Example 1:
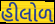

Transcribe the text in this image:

હીલોળ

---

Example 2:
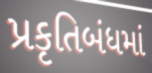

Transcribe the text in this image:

પ્રકૃતિબંધમાં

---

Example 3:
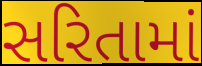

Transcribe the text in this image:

સરિતામાં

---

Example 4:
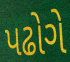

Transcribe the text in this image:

પઢોગે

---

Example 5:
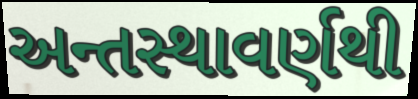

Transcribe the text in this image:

અન્તસ્થાવર્ણથી